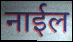
नाईल